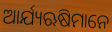
ଆର୍ଯ୍ୟଋଷିମାନେ